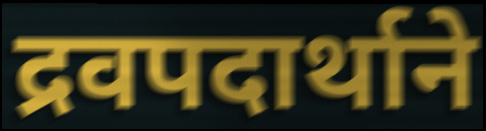
द्रवपदार्थाने